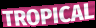
TROPICAL